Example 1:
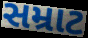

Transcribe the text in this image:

સમ્રાટ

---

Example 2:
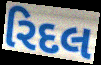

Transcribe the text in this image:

રિદલ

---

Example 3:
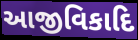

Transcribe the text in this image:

આજીવિકાદિ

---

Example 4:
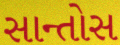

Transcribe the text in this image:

સાન્તોસ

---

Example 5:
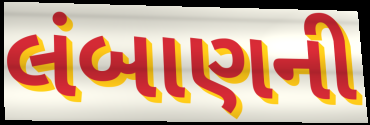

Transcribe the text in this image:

લંબાણની